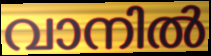
വാനിൽ